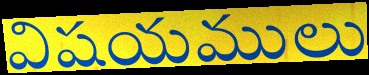
విషయములు